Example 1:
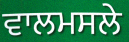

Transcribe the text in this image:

ਵਾਲਮਸਲੇ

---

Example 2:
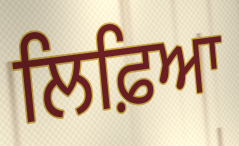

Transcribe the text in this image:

ਲਿਫ਼ਿਆ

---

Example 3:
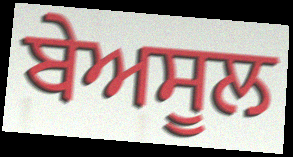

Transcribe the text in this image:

ਬੇਅਸੂਲ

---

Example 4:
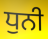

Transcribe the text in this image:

ਧੁਨੀ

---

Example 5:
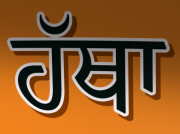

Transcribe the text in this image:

ਹੱਥਾ